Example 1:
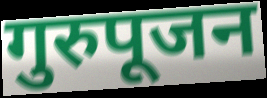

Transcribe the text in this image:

गुरुपूजन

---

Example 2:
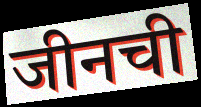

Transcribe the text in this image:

जीनची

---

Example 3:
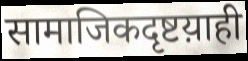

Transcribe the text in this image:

सामाजिकदृष्टय़ाही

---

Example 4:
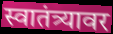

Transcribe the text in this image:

स्वातंत्र्यावर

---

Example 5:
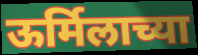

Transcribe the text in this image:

ऊर्मिलाच्या